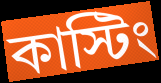
কাস্টিং